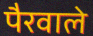
पैरवाले